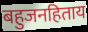
बहुजनहिताय